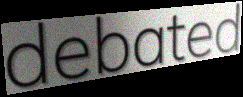
debated